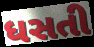
ધસતી